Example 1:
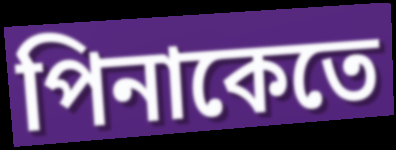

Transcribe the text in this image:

পিনাকেতে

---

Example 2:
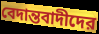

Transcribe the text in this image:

বেদান্তবাদীদের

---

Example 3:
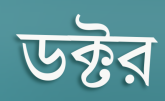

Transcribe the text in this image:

ডক্টর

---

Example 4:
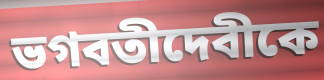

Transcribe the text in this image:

ভগবতীদেবীকে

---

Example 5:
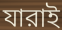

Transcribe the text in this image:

যারাই